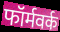
फॉर्मवर्क